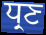
ਧ੍ਰਣ